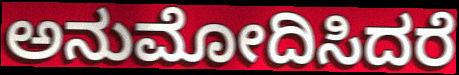
ಅನುಮೋದಿಸಿದರೆ